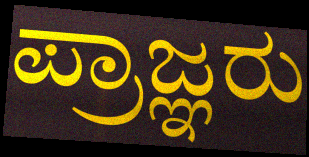
ಪ್ರಾಜ್ಞರು